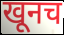
खूनच